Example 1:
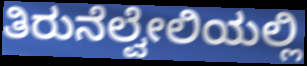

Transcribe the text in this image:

ತಿರುನೆಲ್ವೇಲಿಯಲ್ಲಿ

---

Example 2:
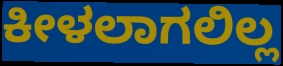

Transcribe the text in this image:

ಕೀಳಲಾಗಲಿಲ್ಲ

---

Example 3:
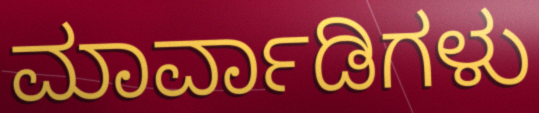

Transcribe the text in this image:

ಮಾರ್ವಾಡಿಗಳು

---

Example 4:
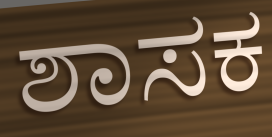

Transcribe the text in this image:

ಶಾಸಕ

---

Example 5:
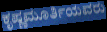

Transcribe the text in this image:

ಕೃಷ್ಣಮೂರ್ತಿಯವರು